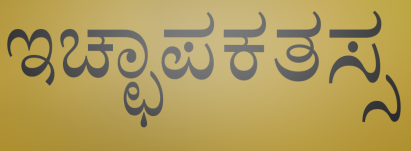
ಇಚ್ಛಾಪಕತಸ್ಸ